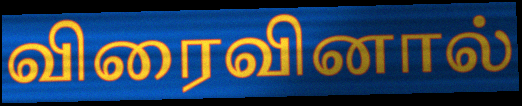
விரைவினால்